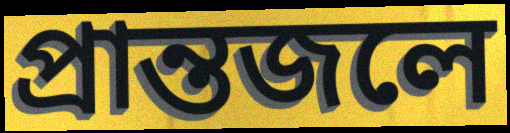
প্রান্তজলে